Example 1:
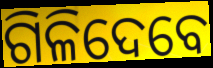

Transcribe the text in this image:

ଗିଳିଦେବେ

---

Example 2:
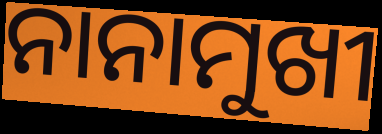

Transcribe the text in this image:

ନାନାମୁଖୀ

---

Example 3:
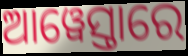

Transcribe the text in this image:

ଆୱେସ୍ତାରେ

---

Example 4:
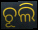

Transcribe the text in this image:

ଚୂଲି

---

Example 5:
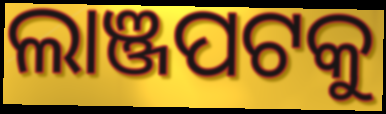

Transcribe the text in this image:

ଲାଞ୍ଜପଟକୁ